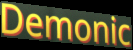
Demonic